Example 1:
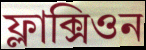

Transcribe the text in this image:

ফ্লাক্সিওন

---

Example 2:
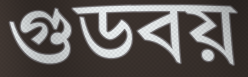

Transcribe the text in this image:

গুডবয়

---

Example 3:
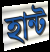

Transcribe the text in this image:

হান্ট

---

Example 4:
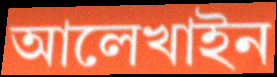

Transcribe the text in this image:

আলেখাইন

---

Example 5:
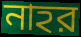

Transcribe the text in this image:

নাহর